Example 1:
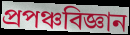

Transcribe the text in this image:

প্ৰপঞ্চবিজ্ঞান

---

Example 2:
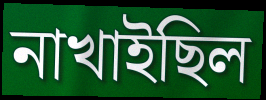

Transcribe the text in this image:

নাখাইছিল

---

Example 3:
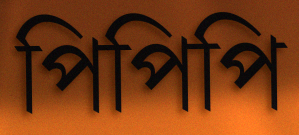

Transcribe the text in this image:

পিপিপি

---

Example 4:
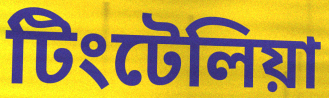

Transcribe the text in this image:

টিংটেলিয়া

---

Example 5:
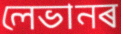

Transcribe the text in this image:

লেভানৰ